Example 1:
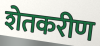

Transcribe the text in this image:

शेतकरीण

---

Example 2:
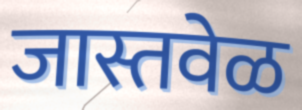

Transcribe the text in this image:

जास्तवेळ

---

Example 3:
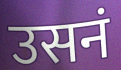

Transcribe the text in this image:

उसनं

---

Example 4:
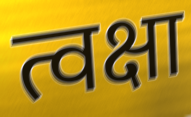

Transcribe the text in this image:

त्वक्षा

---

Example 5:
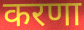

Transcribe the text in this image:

करणा